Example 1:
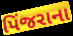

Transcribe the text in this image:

પિંજરાના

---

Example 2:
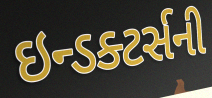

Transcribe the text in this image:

ઇન્ડક્ટર્સની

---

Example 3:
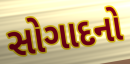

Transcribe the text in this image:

સોગાદનો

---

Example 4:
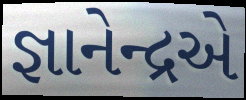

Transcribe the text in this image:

જ્ઞાનેન્દ્રએ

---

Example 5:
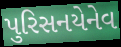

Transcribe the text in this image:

પુરિસનયેનેવ